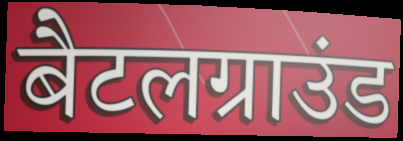
बैटलग्राउंड